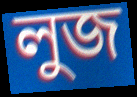
লুজ